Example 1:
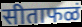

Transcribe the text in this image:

सीताफळं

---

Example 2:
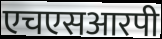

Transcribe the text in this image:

एचएसआरपी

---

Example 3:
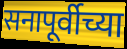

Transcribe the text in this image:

सनापूर्वीच्या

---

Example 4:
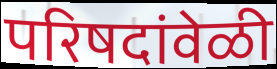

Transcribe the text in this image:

परिषदांवेळी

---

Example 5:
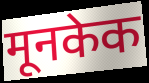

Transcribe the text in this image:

मूनकेक